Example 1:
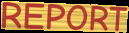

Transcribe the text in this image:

REPORT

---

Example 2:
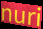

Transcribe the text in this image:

nuri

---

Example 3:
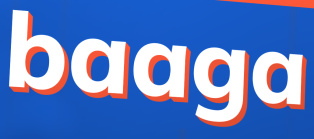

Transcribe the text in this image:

baaga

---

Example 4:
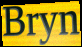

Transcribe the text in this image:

Bryn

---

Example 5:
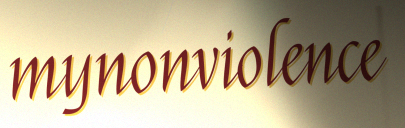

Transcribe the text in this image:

mynonviolence